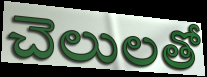
చెలులతో